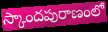
స్కాందపురాణంలో